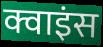
क्वाइंस